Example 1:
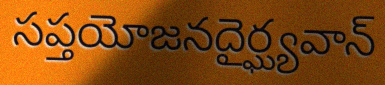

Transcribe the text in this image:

సప్తయోజనదైర్ఘ్యవాన్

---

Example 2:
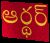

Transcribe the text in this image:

ఆర్థర్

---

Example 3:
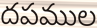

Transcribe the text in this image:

దపముల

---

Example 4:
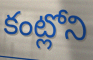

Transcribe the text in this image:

కంట్లోని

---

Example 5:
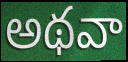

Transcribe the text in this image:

అథవా